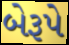
બેરૂપે